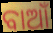
ବାଆଁ